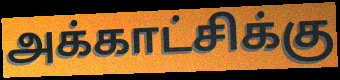
அக்காட்சிக்கு